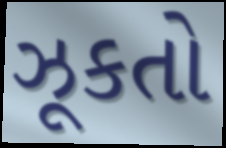
ઝૂકતો